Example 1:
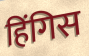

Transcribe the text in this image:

हिंगिस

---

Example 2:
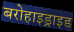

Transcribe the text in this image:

बरोहाइड्राइड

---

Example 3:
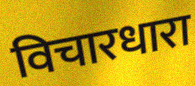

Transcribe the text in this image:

विचारधारा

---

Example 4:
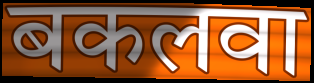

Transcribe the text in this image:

बकलवा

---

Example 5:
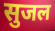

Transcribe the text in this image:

सुजल